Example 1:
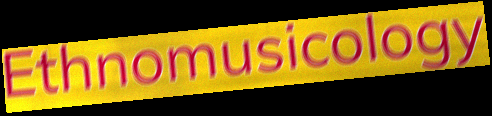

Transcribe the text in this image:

Ethnomusicology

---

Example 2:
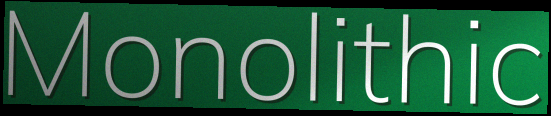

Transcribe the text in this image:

Monolithic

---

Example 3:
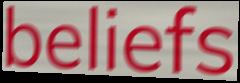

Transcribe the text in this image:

beliefs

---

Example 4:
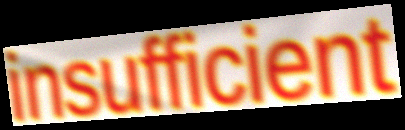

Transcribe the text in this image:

insufficient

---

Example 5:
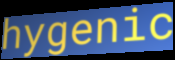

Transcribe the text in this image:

hygenic